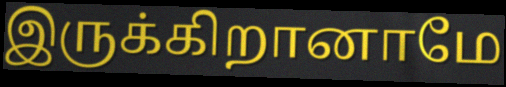
இருக்கிறானாமே